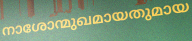
നാശോന്മുഖമായതുമായ